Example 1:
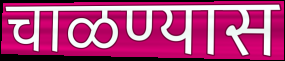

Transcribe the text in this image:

चाळण्यास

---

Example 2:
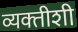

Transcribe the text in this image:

व्यक्‍तीशी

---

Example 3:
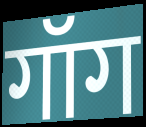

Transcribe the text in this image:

गॉग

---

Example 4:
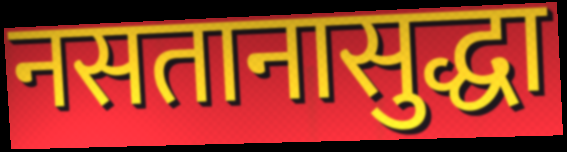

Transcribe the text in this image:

नसतानासुद्धा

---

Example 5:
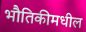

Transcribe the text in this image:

भौतिकीमधील